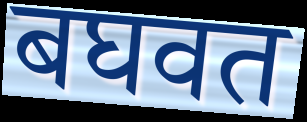
बघवत